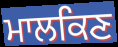
ਮਾਲਕਿਣ